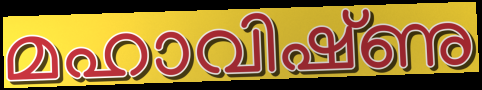
മഹാവിഷ്‌ണു